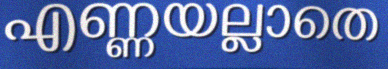
എണ്ണയല്ലാതെ